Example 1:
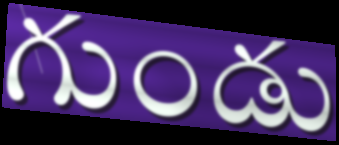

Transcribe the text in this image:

గుండు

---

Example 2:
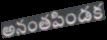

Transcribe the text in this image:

అనంతపిండక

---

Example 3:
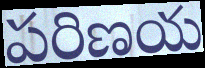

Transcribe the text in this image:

పరిణయ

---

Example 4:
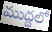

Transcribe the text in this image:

ముద్దలో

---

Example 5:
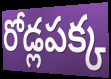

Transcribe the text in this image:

రోడ్లపక్క